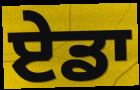
ਏਡਾ